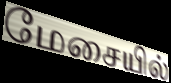
மேசையில்